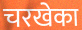
चरखेका